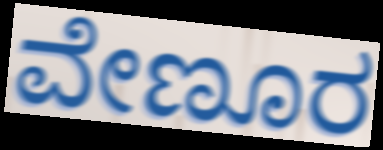
ವೇಣೂರ